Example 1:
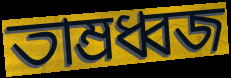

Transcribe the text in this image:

তাম্রধ্বজ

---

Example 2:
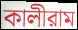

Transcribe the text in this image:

কালীরাম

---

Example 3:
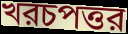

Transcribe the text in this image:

খরচপত্তর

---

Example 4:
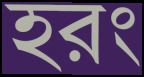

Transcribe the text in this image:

হরং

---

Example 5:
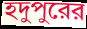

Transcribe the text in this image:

হদুপুরের